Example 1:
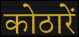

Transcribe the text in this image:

कोठारें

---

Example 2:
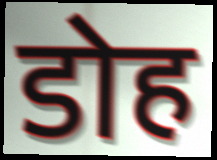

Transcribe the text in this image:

डोह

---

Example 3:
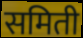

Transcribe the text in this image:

समिती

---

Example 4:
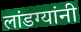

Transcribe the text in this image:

लांडग्यांनी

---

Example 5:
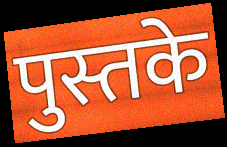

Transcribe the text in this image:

पुस्‍तके